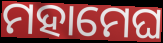
ମହାମେଘ